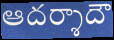
ఆదర్శాదౌ